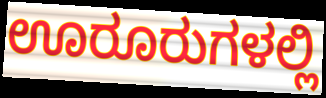
ಊರೂರುಗಳಲ್ಲಿ